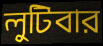
লুটিবার